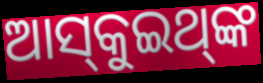
ଆସ୍‌କୁଇଥ୍‌ଙ୍କ